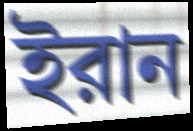
ইরান